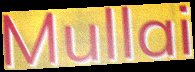
Mullai